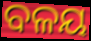
ବଳୟ